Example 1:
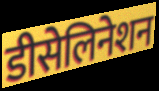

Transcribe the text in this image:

डीसेलिनेशन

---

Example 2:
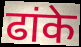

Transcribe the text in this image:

ढांके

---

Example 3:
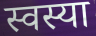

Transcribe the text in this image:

स्वस्या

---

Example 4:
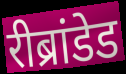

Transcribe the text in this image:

रीब्रांडेड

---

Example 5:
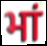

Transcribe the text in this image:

भां